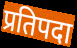
प्रतिपदा